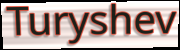
Turyshev